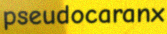
pseudocaranx